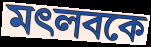
মৎলবকে